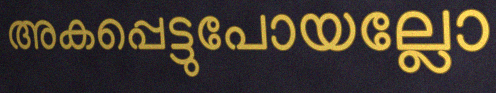
അകപ്പെട്ടുപോയല്ലോ